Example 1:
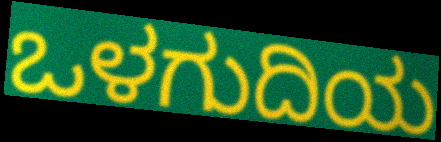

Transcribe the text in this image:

ಒಳಗುದಿಯ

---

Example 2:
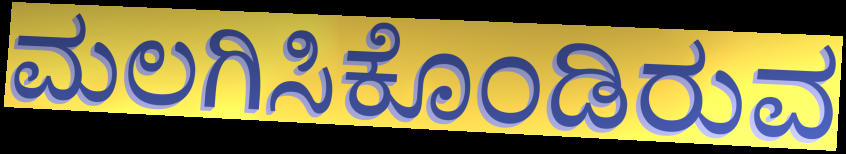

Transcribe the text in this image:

ಮಲಗಿಸಿಕೊಂಡಿರುವ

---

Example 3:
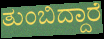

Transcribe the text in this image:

ತುಂಬಿದ್ದಾರೆ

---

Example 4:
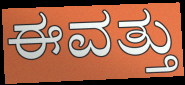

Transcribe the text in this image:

ಈವತ್ತು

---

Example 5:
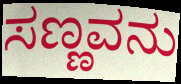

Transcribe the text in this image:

ಸಣ್ಣವನು